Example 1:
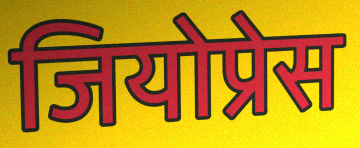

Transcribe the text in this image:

जियोप्रेस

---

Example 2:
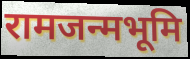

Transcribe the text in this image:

रामजन्मभूमि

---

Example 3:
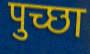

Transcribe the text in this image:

पुच्छा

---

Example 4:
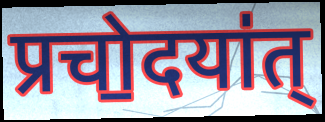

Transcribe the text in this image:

प्रचो॒दया॑त्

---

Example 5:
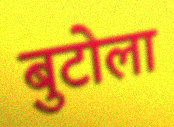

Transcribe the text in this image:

बुटोला